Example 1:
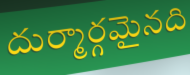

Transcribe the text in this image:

దుర్మార్గమైనది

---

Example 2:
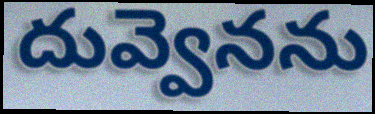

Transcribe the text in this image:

దువ్వెనను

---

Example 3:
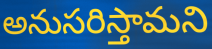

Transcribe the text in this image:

అనుసరిస్తామని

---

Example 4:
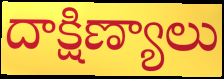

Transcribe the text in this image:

దాక్షిణ్యాలు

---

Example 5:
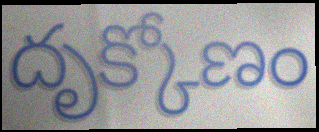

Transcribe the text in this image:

దృక్కోణం